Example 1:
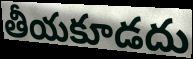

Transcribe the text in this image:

తీయకూడదు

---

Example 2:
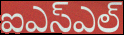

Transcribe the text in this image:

ఐఎస్ఎల్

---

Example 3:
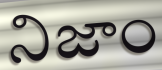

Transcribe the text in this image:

నిజాం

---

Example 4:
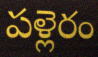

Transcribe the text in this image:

పళ్లెరం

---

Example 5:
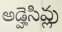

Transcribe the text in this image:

అడ్హెసివ్లు